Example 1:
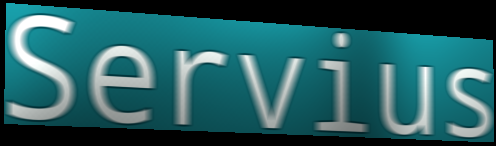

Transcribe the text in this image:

Servius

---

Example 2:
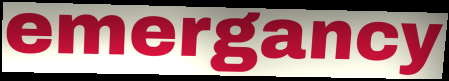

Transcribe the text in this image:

emergancy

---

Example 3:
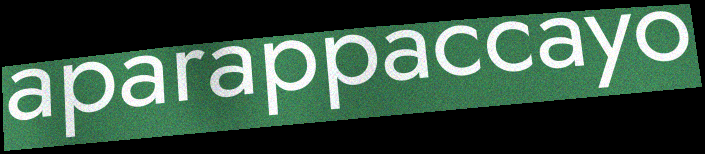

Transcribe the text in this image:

aparappaccayo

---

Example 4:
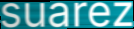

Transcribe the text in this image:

suarez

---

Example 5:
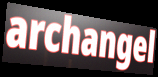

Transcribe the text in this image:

archangel